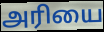
அரியை